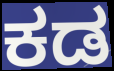
ಕಡ